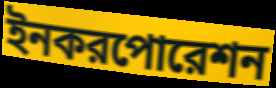
ইনকরপোরেশন